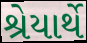
શ્રેયાર્થે